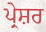
ਪ੍ਰੇਸ਼ਰ